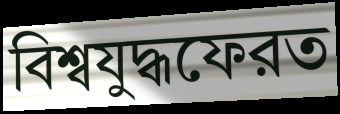
বিশ্বযুদ্ধফেরত